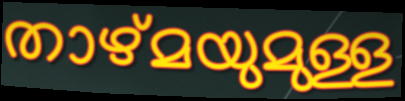
താഴ്മയുമുള്ള